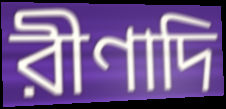
রীণাদি